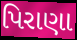
પિરાણા